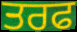
ਤਰਫ